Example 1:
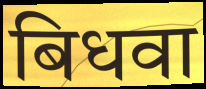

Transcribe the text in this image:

बिधवा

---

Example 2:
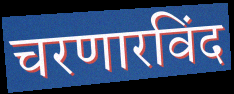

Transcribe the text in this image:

चरणारविंद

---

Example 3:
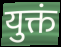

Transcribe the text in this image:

युक्तं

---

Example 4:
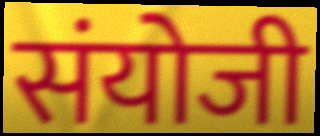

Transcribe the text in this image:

संयोजी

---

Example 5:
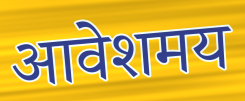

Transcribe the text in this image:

आवेशमय